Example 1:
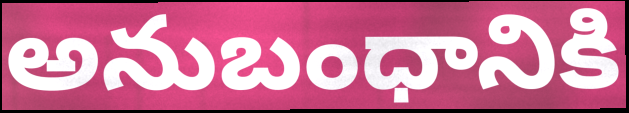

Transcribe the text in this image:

అనుబంధానికి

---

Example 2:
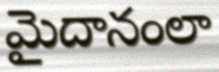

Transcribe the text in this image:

మైదానంలా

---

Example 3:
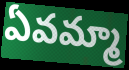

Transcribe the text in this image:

ఏవమ్మా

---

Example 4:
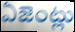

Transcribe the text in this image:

ఏజెంట్లు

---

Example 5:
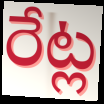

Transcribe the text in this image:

రేట్ల